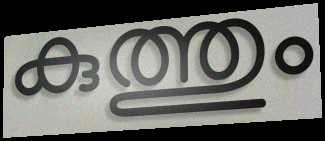
കുത്തും